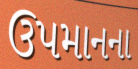
ઉપમાનના